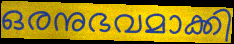
ഒരനുഭവമാക്കി